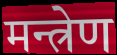
मन्त्रेण